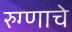
रुग्णाचे